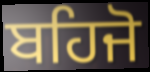
ਬਹਿਜੋ